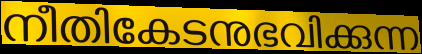
നീതികേടനുഭവിക്കുന്ന